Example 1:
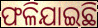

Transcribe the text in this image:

ଫଳିଯାଇଛି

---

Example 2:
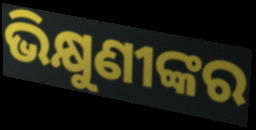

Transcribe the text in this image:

ଭିକ୍ଷୁଣୀଙ୍କର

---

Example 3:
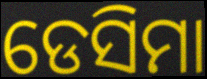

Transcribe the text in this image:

ଡେସିମା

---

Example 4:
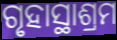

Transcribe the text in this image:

ଗୃହାସ୍ଥାଶ୍ରମ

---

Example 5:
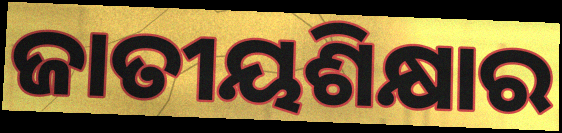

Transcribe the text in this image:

ଜାତୀୟଶିକ୍ଷାର